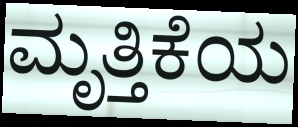
ಮೃತ್ತಿಕೆಯ